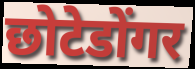
छोटेडोंगर